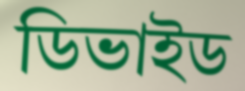
ডিভাইড